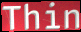
Thin